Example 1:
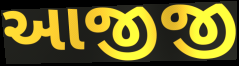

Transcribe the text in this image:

આજીજી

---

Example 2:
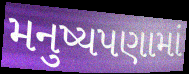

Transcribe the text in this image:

મનુષ્યપણામાં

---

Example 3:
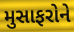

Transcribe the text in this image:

મુસાફરોને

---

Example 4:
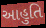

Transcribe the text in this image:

આહુતિ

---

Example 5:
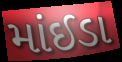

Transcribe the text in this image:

માંઈડા